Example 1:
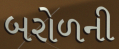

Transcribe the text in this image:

બરોળની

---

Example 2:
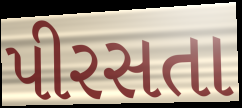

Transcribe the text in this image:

પીરસતા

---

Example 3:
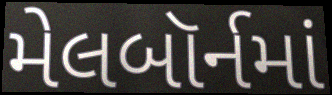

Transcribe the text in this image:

મેલબૉર્નમાં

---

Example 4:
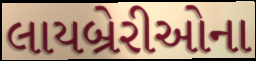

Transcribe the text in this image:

લાયબ્રેરીઓના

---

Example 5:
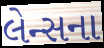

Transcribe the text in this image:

લેન્સના